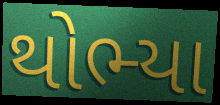
થોભ્યા